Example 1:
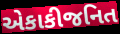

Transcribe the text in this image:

એકાકીજનિત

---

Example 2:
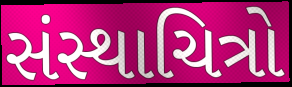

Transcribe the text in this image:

સંસ્થાચિત્રો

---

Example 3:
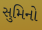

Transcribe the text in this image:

સુમિનો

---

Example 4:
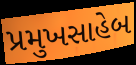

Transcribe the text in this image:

પ્રમુખસાહેબ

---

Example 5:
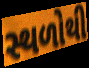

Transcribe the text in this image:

સ્થળોથી